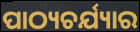
ପାଠ୍ୟଚର୍ଯ୍ୟାର